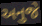
અનુજે